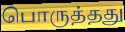
பொருத்தது